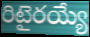
రిటైరయ్యే